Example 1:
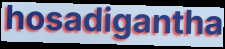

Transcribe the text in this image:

hosadigantha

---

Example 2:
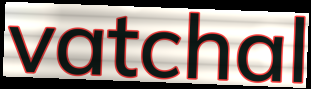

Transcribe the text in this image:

vatchal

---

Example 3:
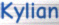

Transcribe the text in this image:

Kylian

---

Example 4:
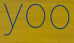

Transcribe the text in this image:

yoo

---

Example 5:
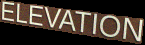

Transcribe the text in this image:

ELEVATION